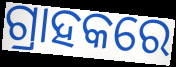
ଗ୍ରାହକରେ